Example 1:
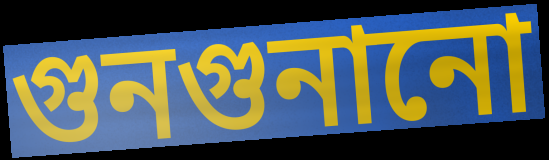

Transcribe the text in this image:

গুনগুনানো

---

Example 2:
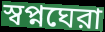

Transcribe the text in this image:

স্বপ্নঘেরা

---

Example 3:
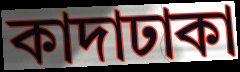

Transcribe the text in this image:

কাদাঢাকা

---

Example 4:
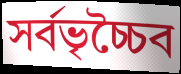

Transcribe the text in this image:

সর্বভৃচ্চৈব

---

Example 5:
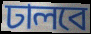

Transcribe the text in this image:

ঢালবে